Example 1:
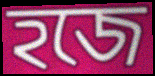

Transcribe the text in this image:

হজে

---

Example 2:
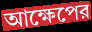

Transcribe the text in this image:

আক্ষেপের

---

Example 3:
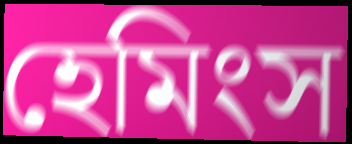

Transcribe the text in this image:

হেমিংস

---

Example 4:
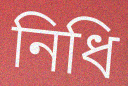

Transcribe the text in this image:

নিধি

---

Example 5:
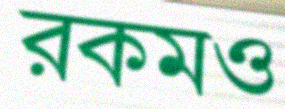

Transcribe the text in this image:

রকমও